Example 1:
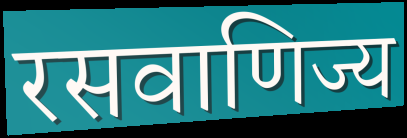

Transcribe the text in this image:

रसवाणिज्य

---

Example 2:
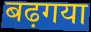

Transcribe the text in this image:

बढ़गया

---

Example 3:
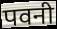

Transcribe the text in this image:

पवनी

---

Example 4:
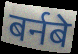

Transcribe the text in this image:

बर्नबे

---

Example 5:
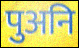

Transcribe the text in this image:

पुअनि